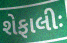
શેફાલીઃ